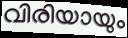
വിരിയായും